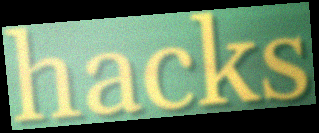
hacks